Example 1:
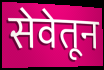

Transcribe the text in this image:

सेवेतून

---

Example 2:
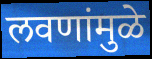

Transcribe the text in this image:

लवणांमुळे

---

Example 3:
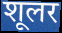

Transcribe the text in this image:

शूलर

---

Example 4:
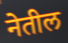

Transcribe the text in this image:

नेतील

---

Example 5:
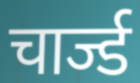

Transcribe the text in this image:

चार्ज्ड